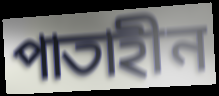
পাতাহীন